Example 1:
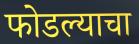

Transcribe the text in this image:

फोडल्याचा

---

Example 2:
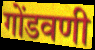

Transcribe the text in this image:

गोंडवणी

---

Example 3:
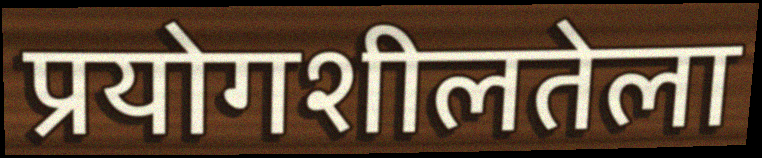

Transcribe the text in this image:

प्रयोगशीलतेला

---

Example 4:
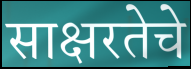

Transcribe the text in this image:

साक्षरतेचे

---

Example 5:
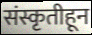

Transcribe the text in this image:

संस्कृतीहून